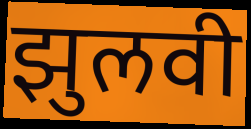
झुलवी